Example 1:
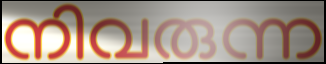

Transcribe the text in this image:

നിവരുന്ന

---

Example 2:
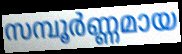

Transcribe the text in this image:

സമ്പൂർണ്ണമായ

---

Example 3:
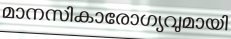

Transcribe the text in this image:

മാനസികാരോഗ്യവുമായി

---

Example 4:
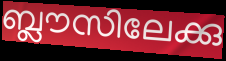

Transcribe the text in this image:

ബ്ലൗസിലേക്കു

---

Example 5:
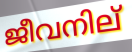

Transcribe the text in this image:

ജീവനില്